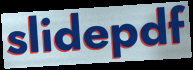
slidepdf